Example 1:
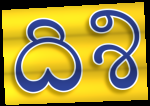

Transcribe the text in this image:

దిశి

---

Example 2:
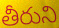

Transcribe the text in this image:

తీరుని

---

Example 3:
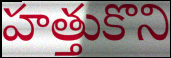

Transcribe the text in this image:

హత్తుకొని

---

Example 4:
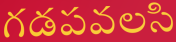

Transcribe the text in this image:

గడపవలసి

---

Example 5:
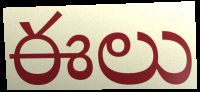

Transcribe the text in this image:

ఈలు